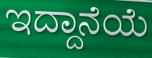
ಇದ್ದಾನೆಯೆ